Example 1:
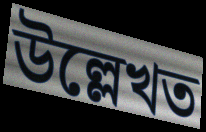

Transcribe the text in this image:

উল্লেখত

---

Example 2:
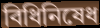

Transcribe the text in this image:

বিধিনিষেধ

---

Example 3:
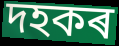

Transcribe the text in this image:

দহকৰ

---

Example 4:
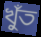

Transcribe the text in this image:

খুঁত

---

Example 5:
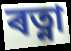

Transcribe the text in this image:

ৰত্না